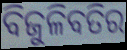
ବିଜୁଳିବତିର